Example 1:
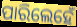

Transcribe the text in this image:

ପାରିଲେହେଁ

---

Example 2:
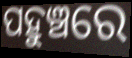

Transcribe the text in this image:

ପହୁଞ୍ଚରେ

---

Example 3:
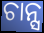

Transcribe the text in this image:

ଚାନ୍ସ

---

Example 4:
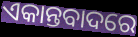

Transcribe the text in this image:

ଏକାନ୍ତବାଦରେ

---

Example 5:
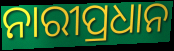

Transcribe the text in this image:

ନାରୀପ୍ରଧାନ